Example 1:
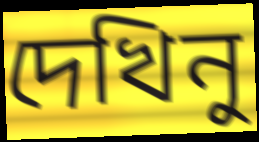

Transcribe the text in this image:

দেখিনু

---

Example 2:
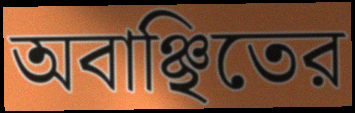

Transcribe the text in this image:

অবাঞ্ছিতের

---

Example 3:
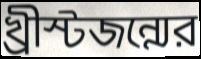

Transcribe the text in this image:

খ্রীস্টজন্মের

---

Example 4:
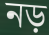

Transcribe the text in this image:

নড়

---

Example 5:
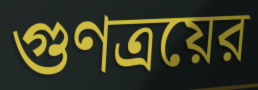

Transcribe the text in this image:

গুণত্রয়ের